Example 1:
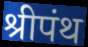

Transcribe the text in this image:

श्रीपंथ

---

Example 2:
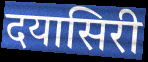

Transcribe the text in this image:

दयासिरी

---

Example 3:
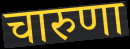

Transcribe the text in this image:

चारुणा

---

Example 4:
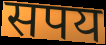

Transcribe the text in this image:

सपय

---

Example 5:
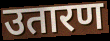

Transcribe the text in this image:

उतारण